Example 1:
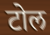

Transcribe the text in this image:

टोल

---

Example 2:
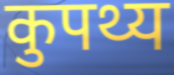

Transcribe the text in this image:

कुपथ्य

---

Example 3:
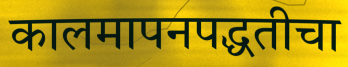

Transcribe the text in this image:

कालमापनपद्धतीचा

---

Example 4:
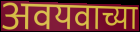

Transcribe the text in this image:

अवयवाच्या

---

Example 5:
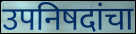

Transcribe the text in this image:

उपनिषदांचा